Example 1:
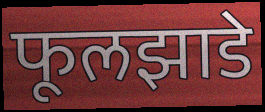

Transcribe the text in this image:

फूलझाडे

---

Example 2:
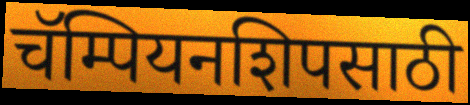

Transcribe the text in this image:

चॅम्पियनशिपसाठी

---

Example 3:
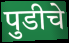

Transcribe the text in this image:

पुडीचे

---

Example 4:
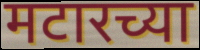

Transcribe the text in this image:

मटारच्या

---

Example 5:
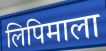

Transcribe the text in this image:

लिपिमाला